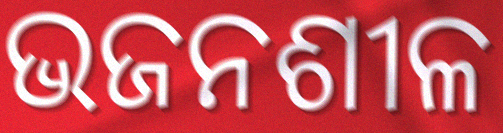
ଭଜନଶୀଳ